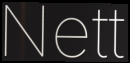
Nett